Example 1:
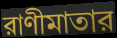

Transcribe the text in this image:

রাণীমাতার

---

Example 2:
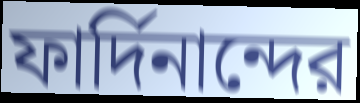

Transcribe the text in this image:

ফার্দিনান্দের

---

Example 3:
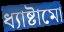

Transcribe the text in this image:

ধ্যাষ্টামো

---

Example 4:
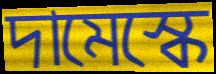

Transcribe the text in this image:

দামেস্কে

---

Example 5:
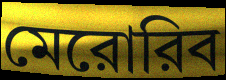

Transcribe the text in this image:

মেরোরিব